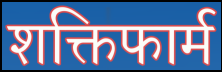
शक्तिफार्म